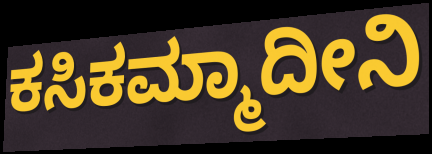
ಕಸಿಕಮ್ಮಾದೀನಿ